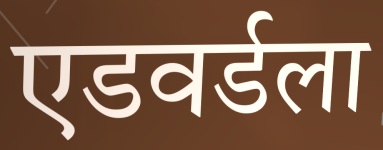
एडवर्डला